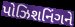
પોઝિશનિંગને